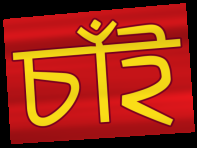
চাঁই